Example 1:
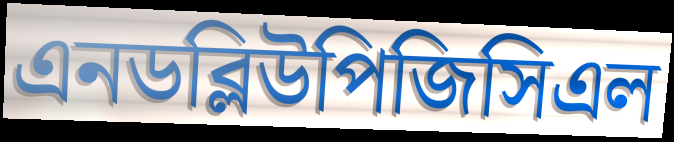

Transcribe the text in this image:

এনডব্লিউপিজিসিএল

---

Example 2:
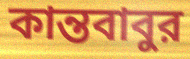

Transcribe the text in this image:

কান্তবাবুর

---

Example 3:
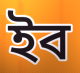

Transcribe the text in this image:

ইব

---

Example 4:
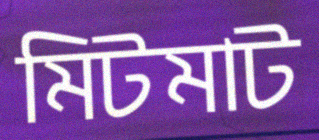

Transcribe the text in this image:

মিটমাট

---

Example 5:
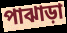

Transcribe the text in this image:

পাঝাড়া